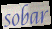
sobar